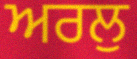
ਅਰਲੁ